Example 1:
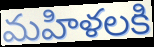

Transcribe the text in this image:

మహిళలకి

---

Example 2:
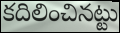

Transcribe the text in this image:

కదిలించినట్టు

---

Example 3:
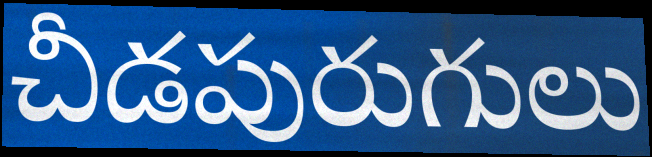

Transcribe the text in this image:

చీడపురుగులు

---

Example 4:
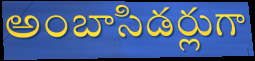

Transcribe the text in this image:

అంబాసిడర్లుగా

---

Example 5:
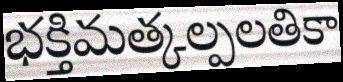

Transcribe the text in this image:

భక్తిమత్కల్పలతికా